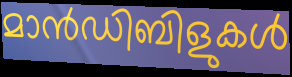
മാൻഡിബിളുകൾ